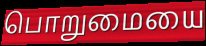
பொறுமையை